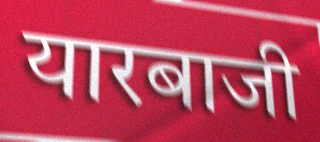
यारबाजी